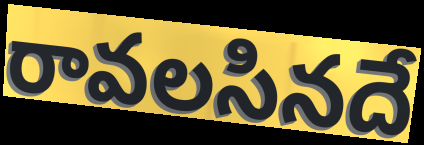
రావలసినదే